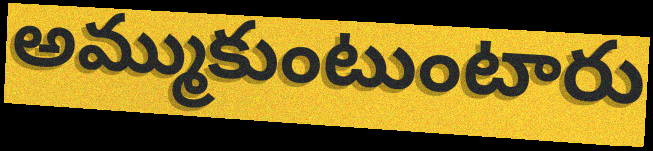
అమ్ముకుంటుంటారు